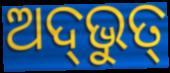
ଅଦ୍‌ଭୁତ୍